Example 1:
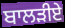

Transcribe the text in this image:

ਬਾਲੜੀਏ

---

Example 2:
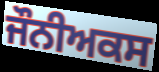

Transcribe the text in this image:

ਜੌਨੀਅਕਸ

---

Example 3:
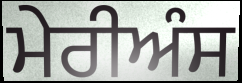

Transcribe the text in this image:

ਮੇਰੀਅੰਸ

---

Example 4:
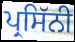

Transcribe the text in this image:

ਪ੍ਰਸਿੱਨੀ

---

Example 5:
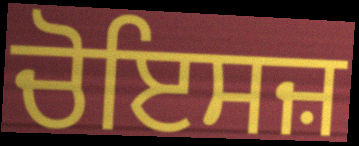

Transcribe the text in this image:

ਚੋਇਸਜ਼